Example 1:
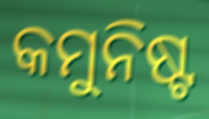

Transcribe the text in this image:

କମୁନିଷ୍ଟ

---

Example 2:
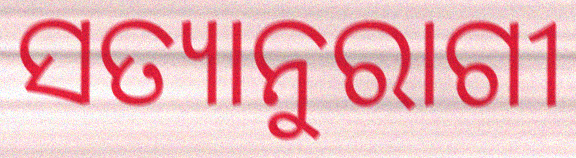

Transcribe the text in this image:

ସତ୍ୟାନୁରାଗୀ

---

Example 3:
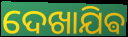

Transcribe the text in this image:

ଦେଖାଯିଵ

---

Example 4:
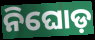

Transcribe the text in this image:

ନିଘୋଡ଼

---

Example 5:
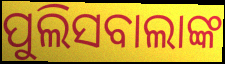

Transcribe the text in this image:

ପୁଲିସବାଲାଙ୍କ